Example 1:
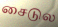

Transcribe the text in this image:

சைடுல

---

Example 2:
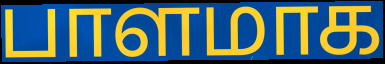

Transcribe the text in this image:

பாளமாக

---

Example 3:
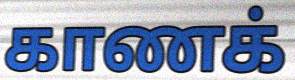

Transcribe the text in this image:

காணக்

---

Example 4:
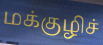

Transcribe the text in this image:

மக்குழிச்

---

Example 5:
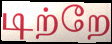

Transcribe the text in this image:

டிற்றே